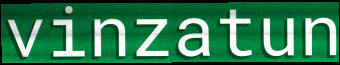
vinzatun